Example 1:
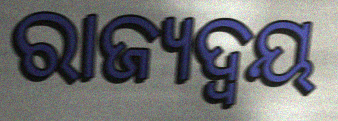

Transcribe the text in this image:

ରାଜ୍ୟଦ୍ୱୟ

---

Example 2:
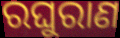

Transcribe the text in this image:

ରଘୁରାଣ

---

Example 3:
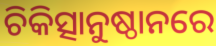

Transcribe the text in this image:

ଚିକିତ୍ସାନୁଷ୍ଠାନରେ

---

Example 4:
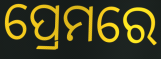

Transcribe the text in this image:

ପ୍ରେମରେ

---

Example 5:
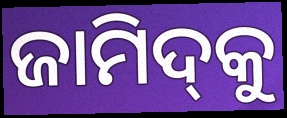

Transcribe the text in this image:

ଜାମିଦ୍‌କୁ